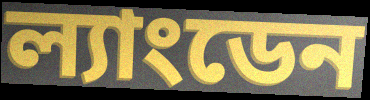
ল্যাংডেন